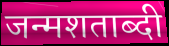
जन्मशताब्दी